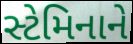
સ્ટેમિનાને